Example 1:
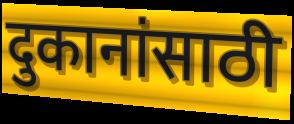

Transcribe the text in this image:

दुकानांसाठी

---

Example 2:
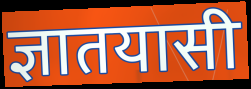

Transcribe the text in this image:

ज्ञातयासी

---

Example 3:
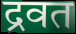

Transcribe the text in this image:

द्रवत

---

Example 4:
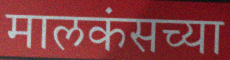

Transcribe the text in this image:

मालकंसच्या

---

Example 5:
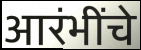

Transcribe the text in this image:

आरंभींचे